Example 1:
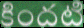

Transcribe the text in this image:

కిందటి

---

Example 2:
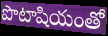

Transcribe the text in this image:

పొటాషియంతో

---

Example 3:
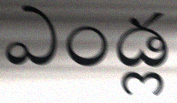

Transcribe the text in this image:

ఎండ్ల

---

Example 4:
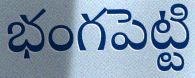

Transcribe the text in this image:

భంగపెట్టి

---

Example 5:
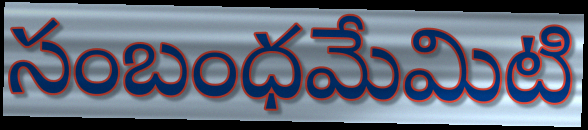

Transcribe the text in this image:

సంబంధమేమిటి